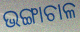
ଭଙ୍ଗାଚାଳ